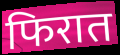
फिरात